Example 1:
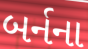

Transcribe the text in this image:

બર્નના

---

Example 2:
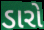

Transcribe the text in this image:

ડારો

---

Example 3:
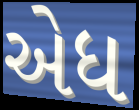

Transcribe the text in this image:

એધ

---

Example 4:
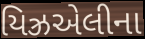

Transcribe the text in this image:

યિઝ્રએલીના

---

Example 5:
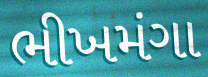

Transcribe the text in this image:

ભીખમંગા